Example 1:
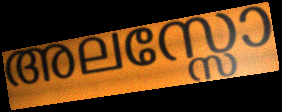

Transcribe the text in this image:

അലസ്സോ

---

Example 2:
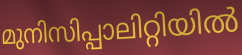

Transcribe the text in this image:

മുനിസിപ്പാലിറ്റിയിൽ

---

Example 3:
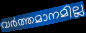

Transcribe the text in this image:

വർത്തമാനമില്ല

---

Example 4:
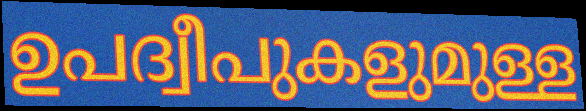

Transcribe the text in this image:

ഉപദ്വീപുകളുമുള്ള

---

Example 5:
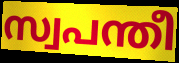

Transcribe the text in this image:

സ്വപന്തീ